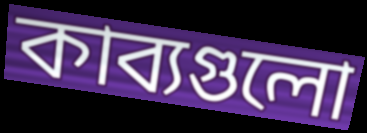
কাব্যগুলো